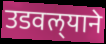
उडवल्याने